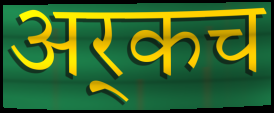
अर्कच